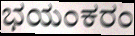
ಭಯಂಕರಂ